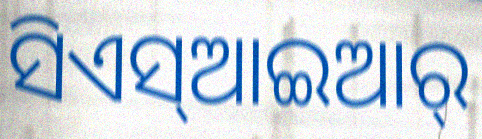
ସିଏସ୍ଆଇଆର୍